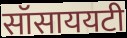
सॉसाययटी